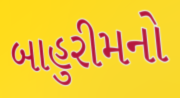
બાહુરીમનો